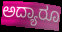
ಅದ್ಯಾರೂ